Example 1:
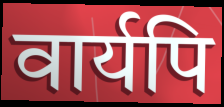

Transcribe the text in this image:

वार्यपि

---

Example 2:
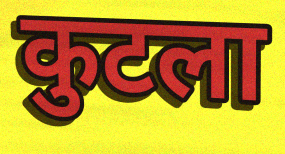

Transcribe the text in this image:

कुटला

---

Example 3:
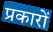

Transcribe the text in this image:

प्रकारों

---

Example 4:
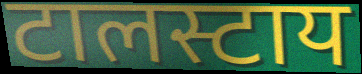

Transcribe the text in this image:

टालस्टाय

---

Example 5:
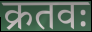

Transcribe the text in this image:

क्रतवः